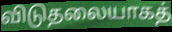
விடுதலையாகத்